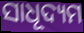
ସାଧୂଦ୍ୟମ